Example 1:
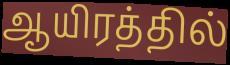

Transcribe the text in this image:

ஆயிரத்தில்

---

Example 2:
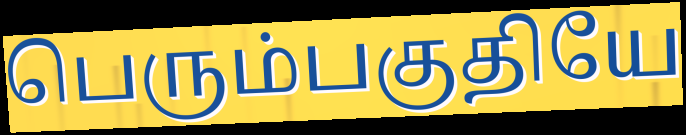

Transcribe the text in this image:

பெரும்பகுதியே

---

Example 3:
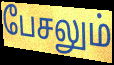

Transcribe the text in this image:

பேசலும்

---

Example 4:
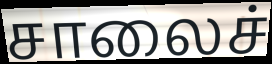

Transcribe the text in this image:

சாலைச்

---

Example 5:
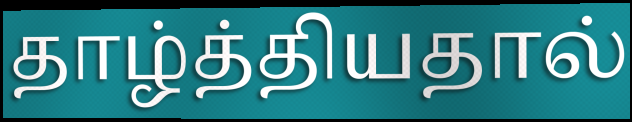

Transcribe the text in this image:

தாழ்த்தியதால்